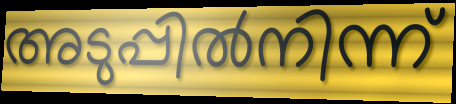
അടുപ്പിൽനിന്ന്